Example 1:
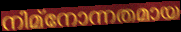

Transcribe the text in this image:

നിമ്നോന്നതമായ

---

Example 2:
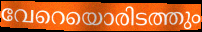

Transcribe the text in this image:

വേറെയൊരിടത്തും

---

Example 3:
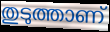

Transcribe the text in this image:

തുടുത്താണ്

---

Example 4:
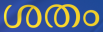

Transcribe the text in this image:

ശതം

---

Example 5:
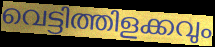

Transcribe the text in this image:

വെട്ടിത്തിളക്കവും